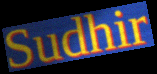
Sudhir